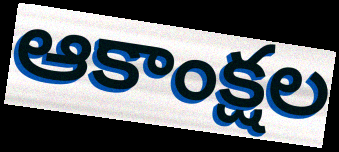
ఆకాంక్షల